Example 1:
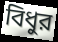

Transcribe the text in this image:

বিধুর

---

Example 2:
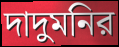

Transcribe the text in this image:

দাদুমনির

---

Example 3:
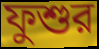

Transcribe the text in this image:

ফুশুর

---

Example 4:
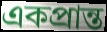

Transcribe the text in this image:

একপ্রান্ত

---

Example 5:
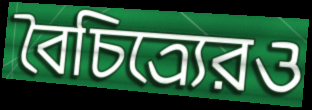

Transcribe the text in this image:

বৈচিত্র্যেরও